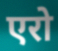
एरो